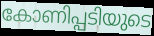
കോണിപ്പടിയുടെ